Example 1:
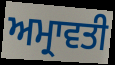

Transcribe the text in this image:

ਅਮ੍ਰਾਵਤੀ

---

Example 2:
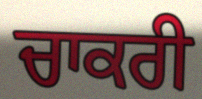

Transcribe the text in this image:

ਚਾਕਰੀ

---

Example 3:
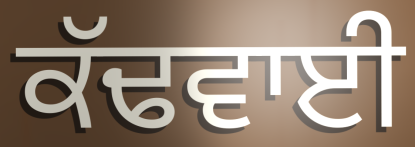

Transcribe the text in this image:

ਕੱਢਵਾਈ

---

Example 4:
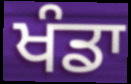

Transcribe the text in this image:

ਖੰਡਾ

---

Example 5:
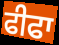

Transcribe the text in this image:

ਫੀਫਾ